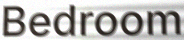
Bedroom